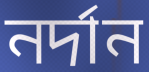
নর্দান